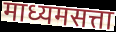
माध्यमसत्ता